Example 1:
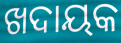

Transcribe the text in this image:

ଖଦାୟକ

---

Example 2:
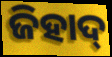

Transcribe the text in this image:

ଜିହାଦ୍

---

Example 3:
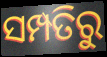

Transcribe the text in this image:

ସମ୍ପତିରୁ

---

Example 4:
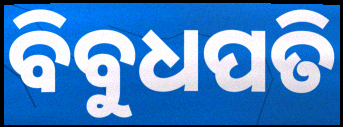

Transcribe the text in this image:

ବିବୁଧପତି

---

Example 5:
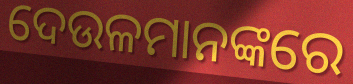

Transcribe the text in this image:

ଦେଉଳମାନଙ୍କରେ